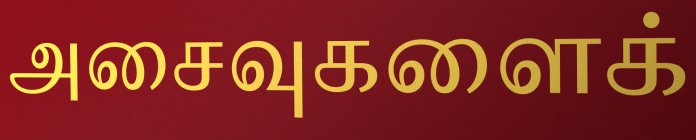
அசைவுகளைக்